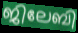
ജിലേബി